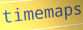
timemaps